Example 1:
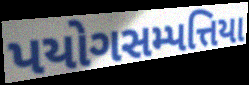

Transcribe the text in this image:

પયોગસમ્પત્તિયા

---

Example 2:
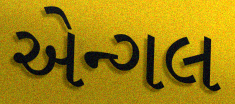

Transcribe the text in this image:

એન્ગલ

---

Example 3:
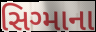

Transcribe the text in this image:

સિગ્માના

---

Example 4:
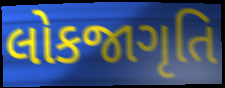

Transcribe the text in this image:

લોકજાગૃતિ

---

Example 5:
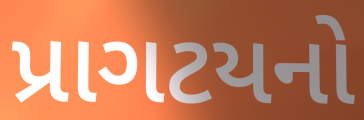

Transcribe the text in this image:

પ્રાગટયનો